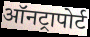
ऑनट्रापोर्ट